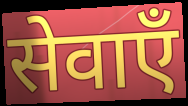
सेवाएँ